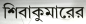
শিবাকুমারের